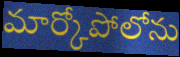
మార్కోపోలోను